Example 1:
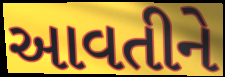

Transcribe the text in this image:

આવતીને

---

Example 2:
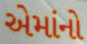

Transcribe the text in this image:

એમાંનો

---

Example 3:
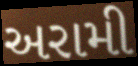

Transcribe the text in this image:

અરામી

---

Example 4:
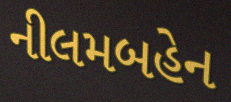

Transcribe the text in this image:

નીલમબહેન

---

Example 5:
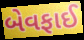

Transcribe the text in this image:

બેવફાઈ